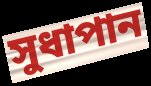
সুধাপান